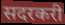
सदरकरी